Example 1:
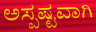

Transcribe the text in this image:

ಅಸ್ಪಷ್ಟವಾಗಿ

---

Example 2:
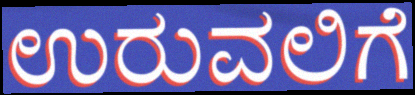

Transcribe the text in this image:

ಉರುವಲಿಗೆ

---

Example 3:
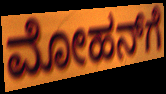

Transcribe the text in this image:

ಮೋಹನ್‌ಗೆ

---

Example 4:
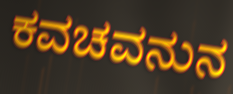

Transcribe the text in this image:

ಕವಚವನುನ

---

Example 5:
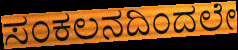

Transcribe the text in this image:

ಸಂಕಲನದಿಂದಲೇ